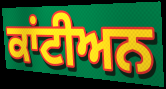
ਕਾਂਟੀਅਨ